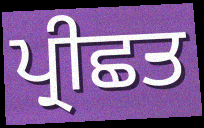
ਪ੍ਰੀਛਤ